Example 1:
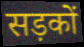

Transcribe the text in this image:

सड़कों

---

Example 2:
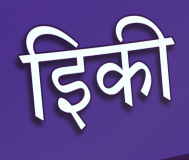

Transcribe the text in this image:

इिकी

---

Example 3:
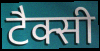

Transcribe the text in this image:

टैक्सी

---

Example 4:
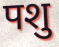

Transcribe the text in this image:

पशु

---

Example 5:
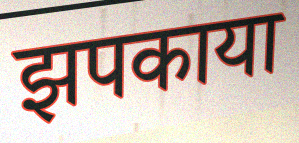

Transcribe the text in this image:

झपकाया